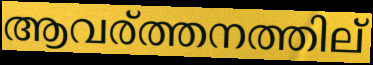
ആവര്ത്തനത്തില്